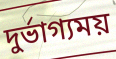
দুর্ভাগ্যময়